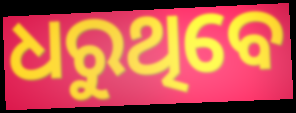
ଧରୁଥିବେ